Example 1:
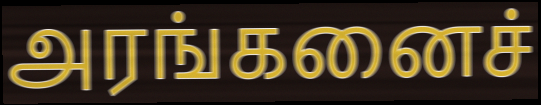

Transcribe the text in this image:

அரங்கனைச்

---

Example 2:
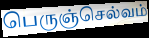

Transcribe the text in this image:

பெருஞ்செல்வம்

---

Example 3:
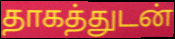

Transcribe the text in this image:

தாகத்துடன்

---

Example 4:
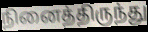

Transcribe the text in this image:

நினைத்திருந்து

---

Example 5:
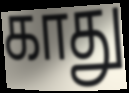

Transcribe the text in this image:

காது